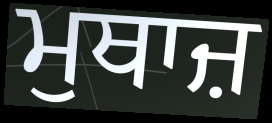
ਮੁਥਾਜ਼